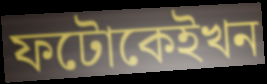
ফটোকেইখন